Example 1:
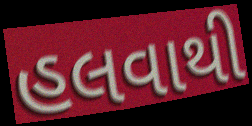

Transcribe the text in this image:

હલવાથી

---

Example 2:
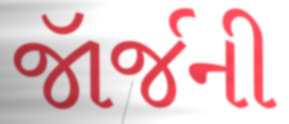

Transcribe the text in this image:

જૉર્જની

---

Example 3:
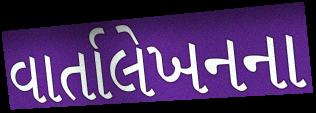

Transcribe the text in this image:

વાર્તાલેખનના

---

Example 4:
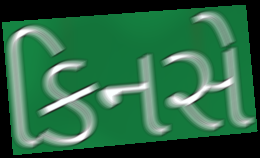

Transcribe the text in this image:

કિનસે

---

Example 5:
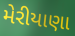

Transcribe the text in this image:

મેરીયાણા